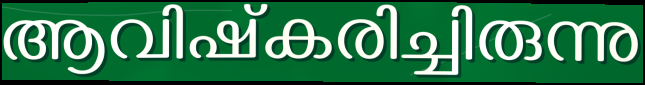
ആവിഷ്‌കരിച്ചിരുന്നു